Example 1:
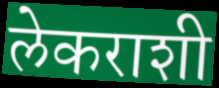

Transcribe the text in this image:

लेकराशी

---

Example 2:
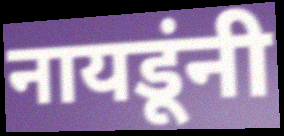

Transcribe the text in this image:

नायडूंनी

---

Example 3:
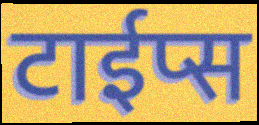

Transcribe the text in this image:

टाईप्स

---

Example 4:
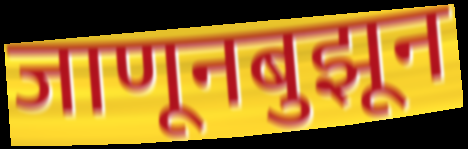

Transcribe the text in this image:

जाणूनबुझून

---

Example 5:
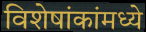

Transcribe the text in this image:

विशेषांकांमध्ये